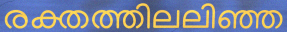
രക്തത്തിലലിഞ്ഞ